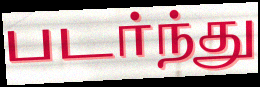
படர்ந்து